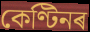
কেণ্টিনৰ